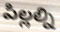
పిల్లల్ని